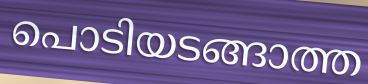
പൊടിയടങ്ങാത്ത